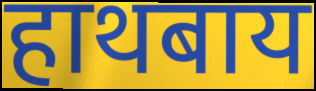
हाथबाय